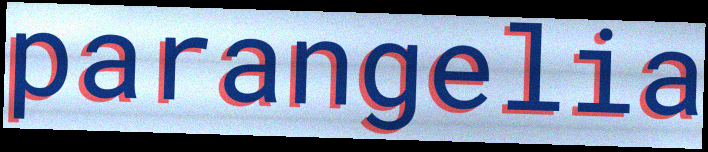
parangelia